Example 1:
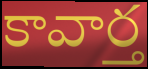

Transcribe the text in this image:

కావార్త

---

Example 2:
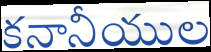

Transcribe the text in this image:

కనానీయుల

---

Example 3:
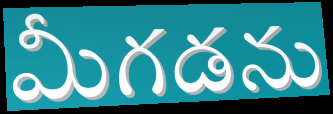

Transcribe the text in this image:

మీగడను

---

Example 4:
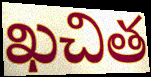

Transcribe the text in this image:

ఖచిత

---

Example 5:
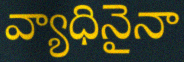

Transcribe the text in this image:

వ్యాధినైనా